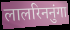
लालरिननुंगा